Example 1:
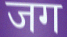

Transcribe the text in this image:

जग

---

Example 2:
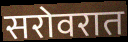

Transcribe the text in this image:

सरोवरात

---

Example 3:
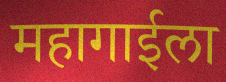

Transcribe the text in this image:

महागाईला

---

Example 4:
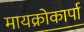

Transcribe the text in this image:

मायक्रोकार्पा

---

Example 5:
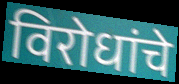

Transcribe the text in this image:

विरोधांचे